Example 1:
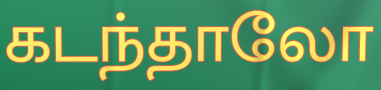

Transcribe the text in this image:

கடந்தாலோ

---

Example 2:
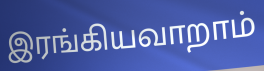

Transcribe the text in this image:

இரங்கியவாறாம்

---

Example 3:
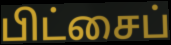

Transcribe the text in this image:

பிட்சைப்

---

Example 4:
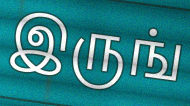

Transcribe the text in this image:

இருங்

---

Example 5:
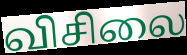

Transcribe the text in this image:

விசிலை